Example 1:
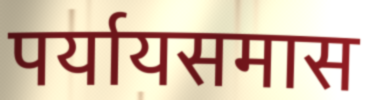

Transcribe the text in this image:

पर्यायसमास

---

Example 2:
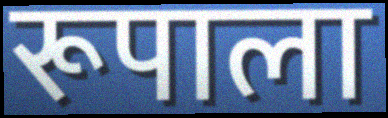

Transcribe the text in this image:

रूपाला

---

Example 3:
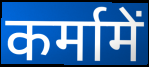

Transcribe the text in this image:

कर्मामें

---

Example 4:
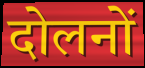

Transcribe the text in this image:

दोलनों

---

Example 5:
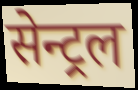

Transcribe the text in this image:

सेन्ट्रल